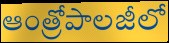
ఆంత్రోపాలజీలో